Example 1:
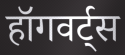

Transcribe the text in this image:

हॉगवर्ट्स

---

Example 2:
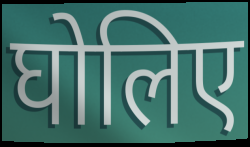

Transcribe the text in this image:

घोलिए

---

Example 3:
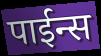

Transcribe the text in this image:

पाईन्स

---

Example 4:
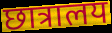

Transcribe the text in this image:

छात्रालय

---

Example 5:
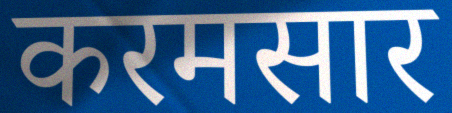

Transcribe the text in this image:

करमसार